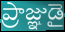
ప్రాజ్ఞుడై